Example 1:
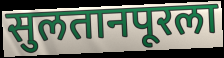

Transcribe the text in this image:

सुलतानपूरला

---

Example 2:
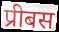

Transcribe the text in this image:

प्रीबस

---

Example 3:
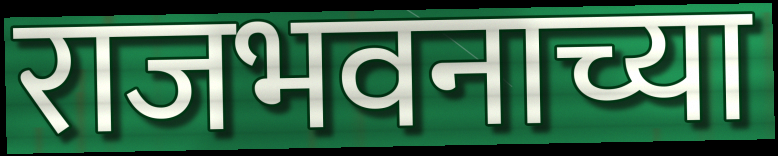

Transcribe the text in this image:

राजभवनाच्या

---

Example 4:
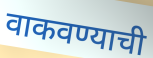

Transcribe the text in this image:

वाकवण्याची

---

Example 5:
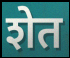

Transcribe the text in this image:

शेत